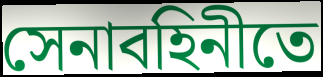
সেনাবহিনীতে